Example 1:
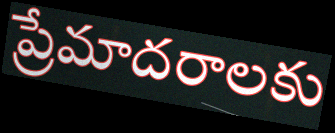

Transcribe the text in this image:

ప్రేమాదరాలకు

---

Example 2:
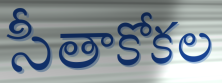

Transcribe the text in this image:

సీతాకోకల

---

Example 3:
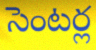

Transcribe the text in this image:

సెంటర్ల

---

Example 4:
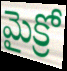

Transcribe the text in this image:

మైక్రో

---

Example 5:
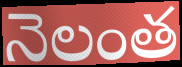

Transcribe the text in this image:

నెలంత